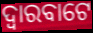
ଦ୍ୱାରବାଟେ